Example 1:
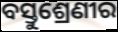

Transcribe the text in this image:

ବସ୍ତୁଶ୍ରେଣୀର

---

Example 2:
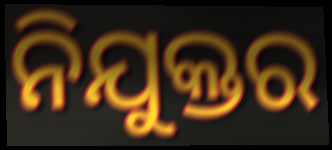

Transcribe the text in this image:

ନିଯୁକ୍ତର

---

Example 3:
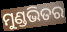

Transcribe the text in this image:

ମୁଣ୍ଡଭିତର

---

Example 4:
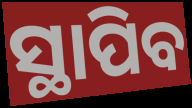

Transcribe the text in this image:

ସ୍ଥାପିବ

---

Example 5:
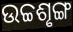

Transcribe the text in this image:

ଉଚ୍ଚଶୃଙ୍ଗ